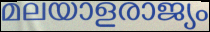
മലയാളരാജ്യം